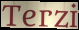
Terzi